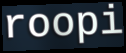
roopi